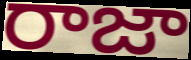
రాజా